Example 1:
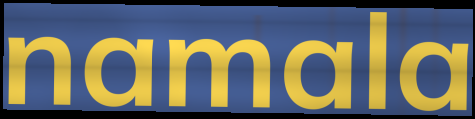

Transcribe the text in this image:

namala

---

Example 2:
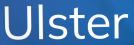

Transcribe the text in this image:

Ulster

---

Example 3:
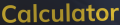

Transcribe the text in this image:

Calculator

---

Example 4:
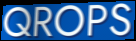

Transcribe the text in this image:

QROPS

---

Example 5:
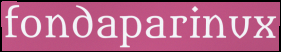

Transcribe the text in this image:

fondaparinux